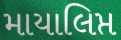
માયાલિપ્ત